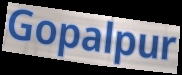
Gopalpur